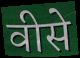
वीसे